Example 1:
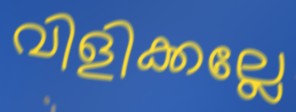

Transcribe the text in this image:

വിളിക്കല്ലേ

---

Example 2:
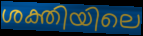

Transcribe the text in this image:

ശക്തിയിലെ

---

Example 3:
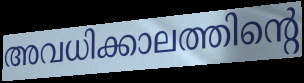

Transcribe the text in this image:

അവധിക്കാലത്തിന്റെ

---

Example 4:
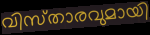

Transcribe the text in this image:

വിസ്‌താരവുമായി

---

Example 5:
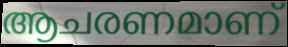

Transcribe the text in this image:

ആചരണമാണ്